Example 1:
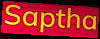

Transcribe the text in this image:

Saptha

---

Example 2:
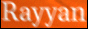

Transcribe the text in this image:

Rayyan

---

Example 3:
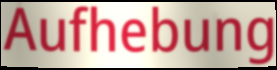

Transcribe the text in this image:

Aufhebung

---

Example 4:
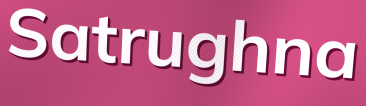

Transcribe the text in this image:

Satrughna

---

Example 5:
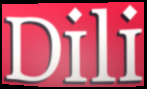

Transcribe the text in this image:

Dili